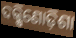
ଦକ୍ଷିଣୋଡ଼ିଶା